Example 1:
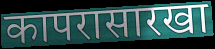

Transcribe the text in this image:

कापरासारखा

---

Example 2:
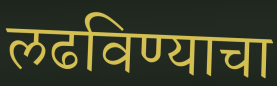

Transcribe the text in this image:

लढविण्याचा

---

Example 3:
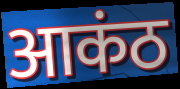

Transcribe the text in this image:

आकंठ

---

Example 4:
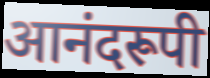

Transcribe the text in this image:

आनंदरूपी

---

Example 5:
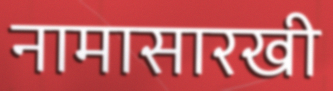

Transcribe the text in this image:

नामासारखी